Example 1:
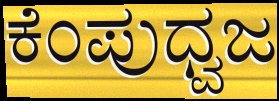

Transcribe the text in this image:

ಕೆಂಪುಧ್ವಜ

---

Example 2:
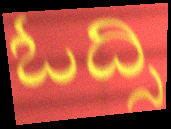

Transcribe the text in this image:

ಓದ್ಸಿ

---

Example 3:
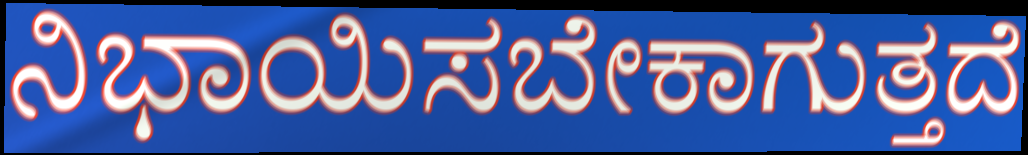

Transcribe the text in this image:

ನಿಭಾಯಿಸಬೇಕಾಗುತ್ತದೆ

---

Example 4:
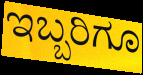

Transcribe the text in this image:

ಇಬ್ಬರಿಗೂ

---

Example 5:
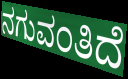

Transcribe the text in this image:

ನಗುವಂತಿದೆ